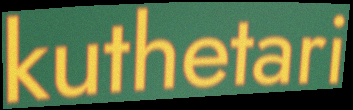
kuthetari